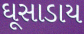
ઘૂસાડાય